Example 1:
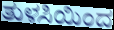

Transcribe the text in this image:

ತುಳಸಿಯಿಂದ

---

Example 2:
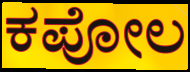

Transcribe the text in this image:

ಕಪೋಲ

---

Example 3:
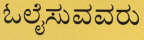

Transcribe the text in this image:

ಓಲೈಸುವವರು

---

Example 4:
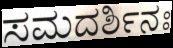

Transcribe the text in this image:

ಸಮದರ್ಶಿನಃ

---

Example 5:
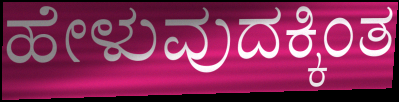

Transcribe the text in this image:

ಹೇಳುವುದಕ್ಕಿಂತ